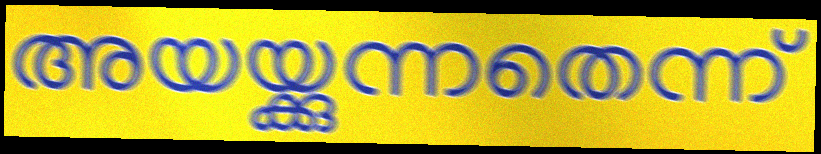
അയയ്ക്കുന്നതെന്ന്